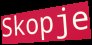
Skopje